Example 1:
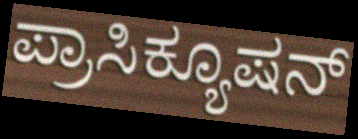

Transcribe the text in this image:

ಪ್ರಾಸಿಕ್ಯೂಷನ್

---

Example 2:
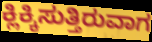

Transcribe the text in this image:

ಕ್ಲಿಕ್ಕಿಸುತ್ತಿರುವಾಗ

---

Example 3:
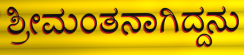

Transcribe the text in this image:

ಶ್ರೀಮಂತನಾಗಿದ್ದನು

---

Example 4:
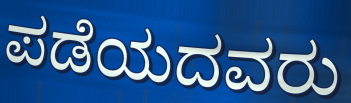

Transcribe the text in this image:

ಪಡೆಯದವರು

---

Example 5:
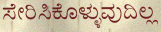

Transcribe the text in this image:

ಸೇರಿಸಿಕೊಳ್ಳುವುದಿಲ್ಲ